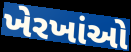
ખેરખાંઓ